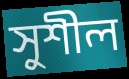
সুশীল